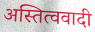
अस्तित्ववादी